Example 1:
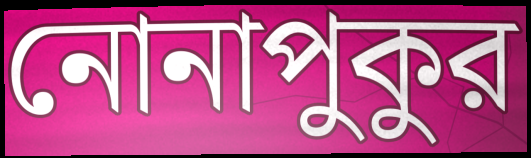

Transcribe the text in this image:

নোনাপুকুর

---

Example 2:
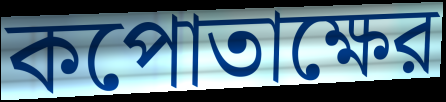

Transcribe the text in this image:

কপোতাক্ষের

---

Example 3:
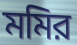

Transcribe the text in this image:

মমির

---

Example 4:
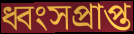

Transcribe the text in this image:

ধ্বংসপ্রাপ্ত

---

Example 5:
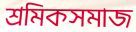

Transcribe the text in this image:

শ্রমিকসমাজ